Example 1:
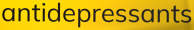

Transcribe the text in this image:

antidepressants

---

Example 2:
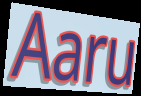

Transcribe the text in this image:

Aaru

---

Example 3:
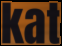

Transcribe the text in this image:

kat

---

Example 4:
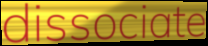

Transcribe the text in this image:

dissociate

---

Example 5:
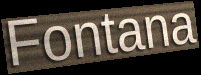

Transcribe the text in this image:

Fontana